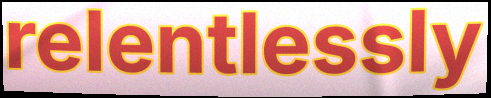
relentlessly